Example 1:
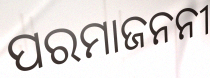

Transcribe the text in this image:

ପରମାଜନନୀ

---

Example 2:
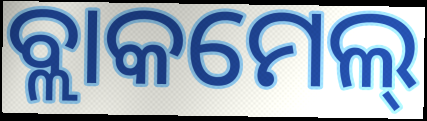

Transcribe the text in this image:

ବ୍ଲାକମେଲ୍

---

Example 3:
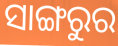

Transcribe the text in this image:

ସାଙ୍ଗରୁର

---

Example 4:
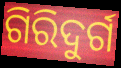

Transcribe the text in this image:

ଗିରିଦୁର୍ଗ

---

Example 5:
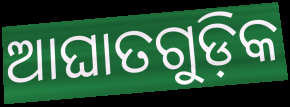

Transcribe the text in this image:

ଆଘାତଗୁଡ଼ିକ